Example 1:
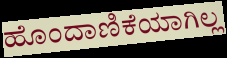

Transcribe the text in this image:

ಹೊಂದಾಣಿಕೆಯಾಗಿಲ್ಲ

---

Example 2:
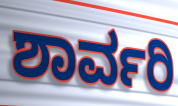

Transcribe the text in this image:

ಶಾರ್ವರಿ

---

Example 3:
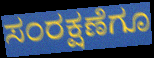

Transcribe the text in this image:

ಸಂರಕ್ಷಣೆಗೂ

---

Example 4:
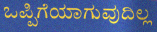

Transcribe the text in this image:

ಒಪ್ಪಿಗೆಯಾಗುವುದಿಲ್ಲ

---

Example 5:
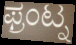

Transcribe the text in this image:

ಫ್ರಂಟ್ನ